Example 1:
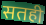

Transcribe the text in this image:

सतही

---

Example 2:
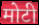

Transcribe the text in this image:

मोटी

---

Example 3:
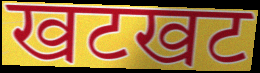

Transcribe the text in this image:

खटखट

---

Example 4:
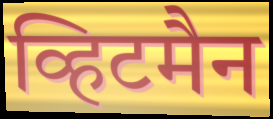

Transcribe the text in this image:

व्हिटमैन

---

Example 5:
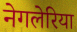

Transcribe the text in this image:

नेगलेरिया